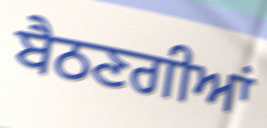
ਬੈਠਣਗੀਆਂ